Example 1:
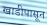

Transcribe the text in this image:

खाडीपासून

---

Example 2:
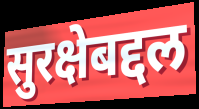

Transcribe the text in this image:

सुरक्षेबद्दल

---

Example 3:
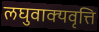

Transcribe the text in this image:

लघुवाक्यवृत्ति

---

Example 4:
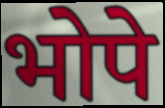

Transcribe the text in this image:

भोपे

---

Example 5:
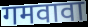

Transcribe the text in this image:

गमवावा